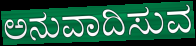
ಅನುವಾದಿಸುವ